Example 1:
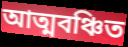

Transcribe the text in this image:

আত্মবঞ্চিত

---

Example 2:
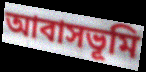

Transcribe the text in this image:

আবাসভূমি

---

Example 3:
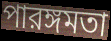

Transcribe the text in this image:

পারঙ্গমতা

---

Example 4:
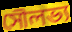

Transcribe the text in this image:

সৌলভ্য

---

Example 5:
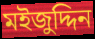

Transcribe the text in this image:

মইজুদ্দিন